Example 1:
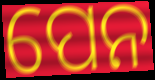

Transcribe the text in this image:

ପେନ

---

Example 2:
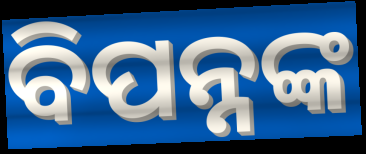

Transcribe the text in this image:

ବିପନ୍ନଙ୍କ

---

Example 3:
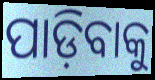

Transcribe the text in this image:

ପାଡ଼ିବାକୁ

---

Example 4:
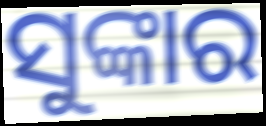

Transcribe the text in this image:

ସୁଙ୍କାର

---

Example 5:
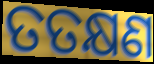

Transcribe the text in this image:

ତତକ୍ଷଣ